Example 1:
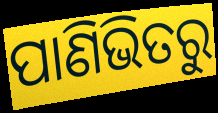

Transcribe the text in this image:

ପାଣିଭିତରୁ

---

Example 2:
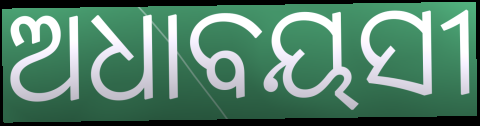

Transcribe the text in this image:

ଅଧାବୟସୀ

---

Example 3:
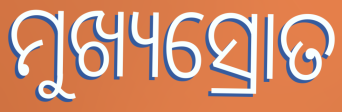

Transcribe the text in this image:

ମୁଖ୍ୟସ୍ରୋତ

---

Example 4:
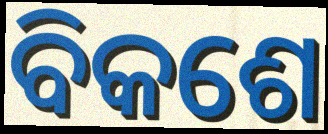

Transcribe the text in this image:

ବିକଶେ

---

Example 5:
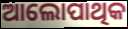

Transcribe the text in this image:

ଆଲୋପାଥିକ